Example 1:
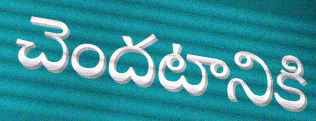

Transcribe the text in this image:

చెందటానికి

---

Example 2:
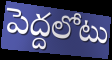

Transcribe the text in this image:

పెద్దలోటు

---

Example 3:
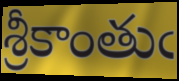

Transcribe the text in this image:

శ్రీకాంతుఁ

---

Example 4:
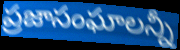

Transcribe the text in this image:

ప్రజాసంఘాలన్నీ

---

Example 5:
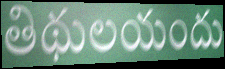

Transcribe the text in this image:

తిథులయందు